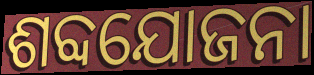
ଶବ୍ଦଯୋଜନା